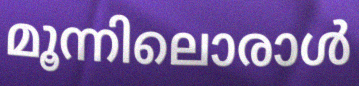
മൂന്നിലൊരാൾ